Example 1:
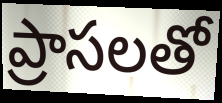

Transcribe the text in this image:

ప్రాసలతో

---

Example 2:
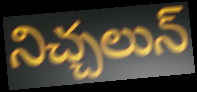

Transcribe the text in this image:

నిచ్చలున్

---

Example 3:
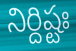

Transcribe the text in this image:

నిర్దిష్టః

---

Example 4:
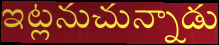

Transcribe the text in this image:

ఇట్లనుచున్నాడు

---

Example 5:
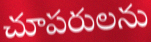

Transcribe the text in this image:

చూపరులను